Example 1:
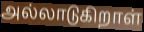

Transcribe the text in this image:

அல்லாடுகிறாள்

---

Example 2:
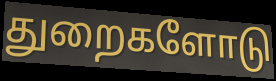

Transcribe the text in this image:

துறைகளோடு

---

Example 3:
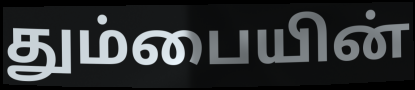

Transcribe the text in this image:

தும்பையின்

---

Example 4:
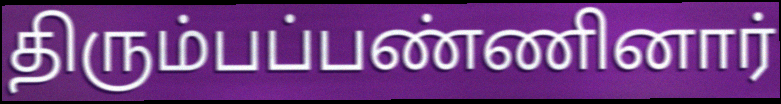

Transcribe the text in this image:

திரும்பப்பண்ணினார்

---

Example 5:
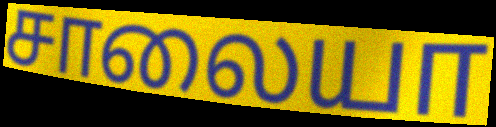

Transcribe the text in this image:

சாலையா